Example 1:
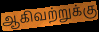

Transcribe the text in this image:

ஆகிவற்றுக்கு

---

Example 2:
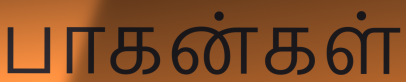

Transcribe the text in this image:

பாகன்கள்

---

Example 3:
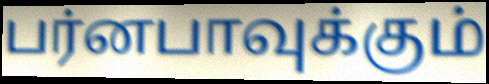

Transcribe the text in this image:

பர்னபாவுக்கும்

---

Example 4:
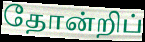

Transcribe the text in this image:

தோன்றிப்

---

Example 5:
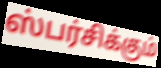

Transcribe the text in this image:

ஸ்பர்சிக்கும்